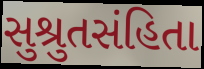
સુશ્રુતસંહિતા